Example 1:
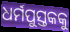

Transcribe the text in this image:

ଧର୍ମପୁସ୍ତକକୁ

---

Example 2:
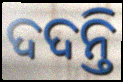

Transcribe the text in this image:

ଦଦନ୍ତି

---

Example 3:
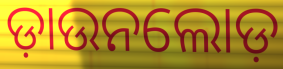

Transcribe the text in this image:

ଡ଼ାଉନଲୋଡ଼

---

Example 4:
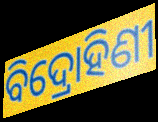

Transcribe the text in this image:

ବିଦ୍ରୋହିଣୀ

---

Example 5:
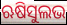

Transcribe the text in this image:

ଋଷିସୁଲଭ